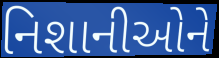
નિશાનીઓને